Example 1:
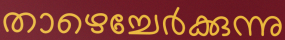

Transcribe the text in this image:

താഴെച്ചേർക്കുന്നു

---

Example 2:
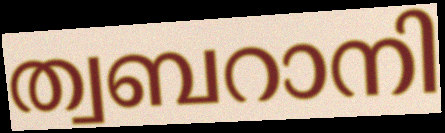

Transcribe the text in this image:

ത്വബറാനി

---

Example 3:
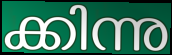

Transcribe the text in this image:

ക്കിന്നു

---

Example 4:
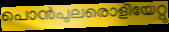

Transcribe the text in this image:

പൊൻപുലരൊളിയേറ്റു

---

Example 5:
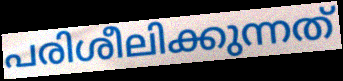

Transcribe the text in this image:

പരിശീലിക്കുന്നത്